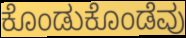
ಕೊಂಡುಕೊಂಡೆವು